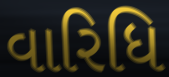
વારિધિ